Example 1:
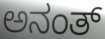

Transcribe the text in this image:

ಅನಂತ್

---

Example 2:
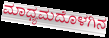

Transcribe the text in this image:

ಮಾಧ್ಯಮದೊಳಗಿನ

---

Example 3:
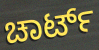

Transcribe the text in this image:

ಚಾರ್ಟ್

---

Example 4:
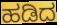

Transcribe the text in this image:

ಹಡಿದ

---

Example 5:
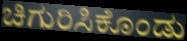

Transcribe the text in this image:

ಚಿಗುರಿಸಿಕೊಂಡು